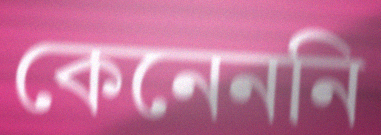
কেনেননি